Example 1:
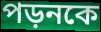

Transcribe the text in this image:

পড়নকে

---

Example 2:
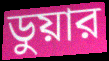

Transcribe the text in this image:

ডুয়ার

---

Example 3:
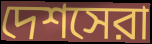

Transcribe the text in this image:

দেশসেরা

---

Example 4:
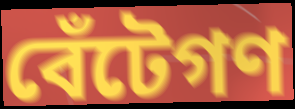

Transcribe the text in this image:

বেঁটেগণ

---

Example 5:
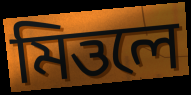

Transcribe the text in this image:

মিত্তলে